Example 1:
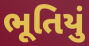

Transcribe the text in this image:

ભૂતિયું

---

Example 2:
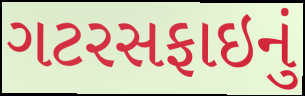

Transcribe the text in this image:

ગટરસફાઇનું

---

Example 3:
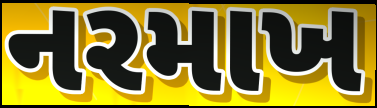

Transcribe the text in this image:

નરમાખ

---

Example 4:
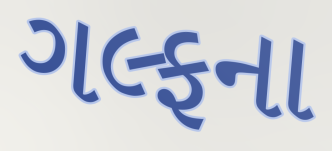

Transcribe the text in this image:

ગલ્ફના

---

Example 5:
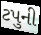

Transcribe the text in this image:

ટપુની